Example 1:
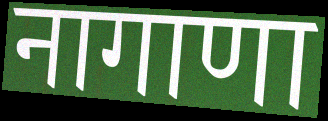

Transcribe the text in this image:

नागाणा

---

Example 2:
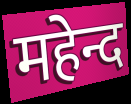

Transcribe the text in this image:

महेन्द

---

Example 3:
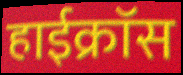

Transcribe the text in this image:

हाईक्रॉस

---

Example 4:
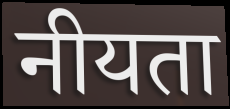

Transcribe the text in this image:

नीयता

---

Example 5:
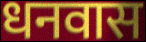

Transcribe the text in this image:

धनवास